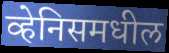
व्हेनिसमधील